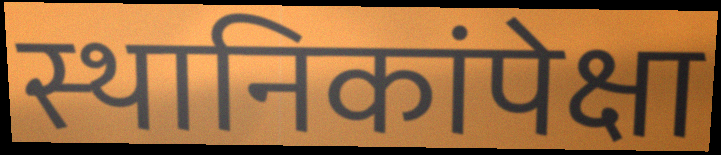
स्थानिकांपेक्षा